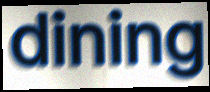
dining